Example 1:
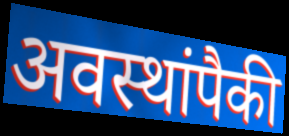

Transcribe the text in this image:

अवस्थांपैकी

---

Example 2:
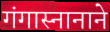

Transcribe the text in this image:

गंगास्नानाने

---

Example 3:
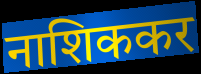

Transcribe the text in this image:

नाशिककर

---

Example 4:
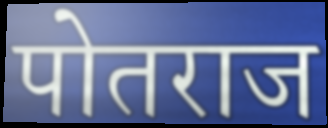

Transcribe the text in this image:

पोतराज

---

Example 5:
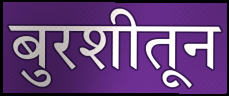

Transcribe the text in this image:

बुरशीतून